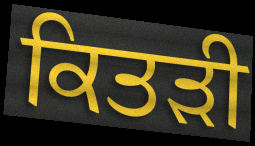
ਕਿਤੜੀ